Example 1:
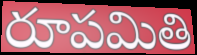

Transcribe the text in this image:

రూపమితి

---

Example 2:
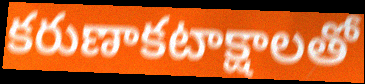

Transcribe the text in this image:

కరుణాకటాక్షాలతో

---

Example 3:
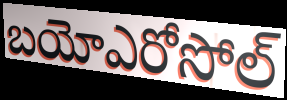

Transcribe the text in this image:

బయోఎరోసోల్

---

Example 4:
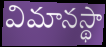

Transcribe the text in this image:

విమానస్థా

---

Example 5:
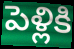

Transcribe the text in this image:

పెళ్లికి